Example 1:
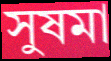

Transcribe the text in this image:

সুষমা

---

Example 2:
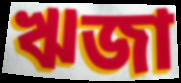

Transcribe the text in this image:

ঋজা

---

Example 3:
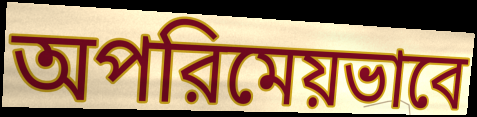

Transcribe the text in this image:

অপরিমেয়ভাবে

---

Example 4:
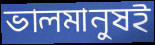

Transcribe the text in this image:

ভালমানুষই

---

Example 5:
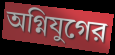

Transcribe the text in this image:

অগ্নিযুগের